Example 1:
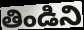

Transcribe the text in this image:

తిండిని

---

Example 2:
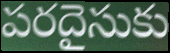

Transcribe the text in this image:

పరదైసుకు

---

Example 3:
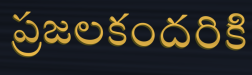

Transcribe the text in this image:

ప్రజలకందరికి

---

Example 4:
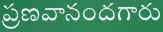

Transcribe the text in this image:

ప్రణవానందగారు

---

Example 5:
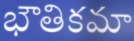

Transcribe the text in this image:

భౌతికమా